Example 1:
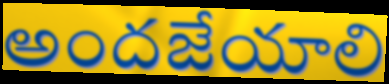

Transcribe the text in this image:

అందజేయాలి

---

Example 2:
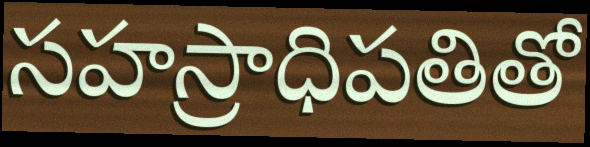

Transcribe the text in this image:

సహస్రాధిపతితో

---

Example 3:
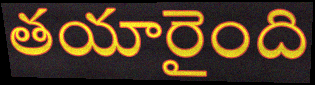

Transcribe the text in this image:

తయారైంది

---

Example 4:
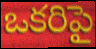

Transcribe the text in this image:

ఒకరిపై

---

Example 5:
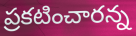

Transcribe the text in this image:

ప్రకటించారన్న